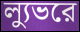
ল্যুভরে